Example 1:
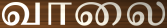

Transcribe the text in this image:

வாலை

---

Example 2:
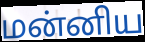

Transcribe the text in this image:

மன்னிய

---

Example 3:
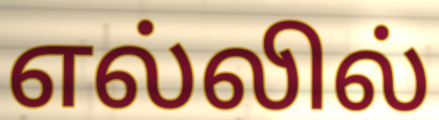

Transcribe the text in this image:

எல்லில்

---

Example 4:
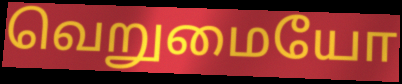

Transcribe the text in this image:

வெறுமையோ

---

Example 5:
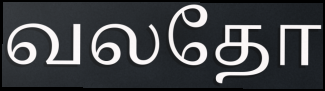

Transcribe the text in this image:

வலதோ